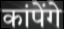
कांपेंगे